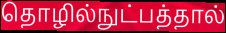
தொழில்நுட்பத்தால்